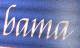
bama